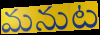
మనుట